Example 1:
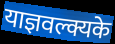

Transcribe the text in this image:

याज्ञवल्क्यके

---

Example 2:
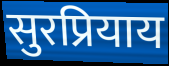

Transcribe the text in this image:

सुरप्रियाय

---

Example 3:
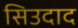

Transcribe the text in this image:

सिउदाद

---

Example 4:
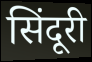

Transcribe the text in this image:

सिंदूरी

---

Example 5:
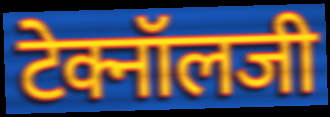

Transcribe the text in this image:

टेक्नॉलजी